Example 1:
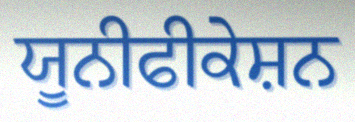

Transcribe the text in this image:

ਯੂਨੀਫੀਕੇਸ਼ਨ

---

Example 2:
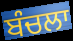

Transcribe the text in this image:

ਬੰਚਲਾ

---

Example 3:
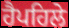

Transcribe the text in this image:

ਹੈਪਹਿਲੇ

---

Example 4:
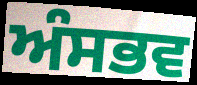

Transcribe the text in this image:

ਅੰਸਭਵ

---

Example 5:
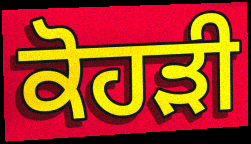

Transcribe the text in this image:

ਕੋਹੜੀ